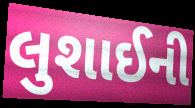
લુશાઈની